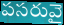
పసరువై